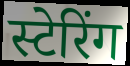
स्टेरिंग